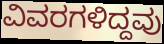
ವಿವರಗಳಿದ್ದವು